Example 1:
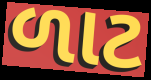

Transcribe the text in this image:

ળાટ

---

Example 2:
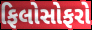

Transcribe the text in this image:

ફિલોસોફરો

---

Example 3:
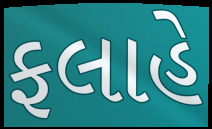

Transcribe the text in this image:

ફલાહે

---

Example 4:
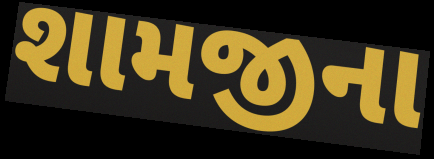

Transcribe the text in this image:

શામજીના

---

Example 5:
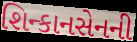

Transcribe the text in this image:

શિન્કાનસેનની